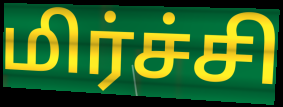
மிர்ச்சி